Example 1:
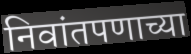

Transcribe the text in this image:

निवांतपणाच्या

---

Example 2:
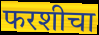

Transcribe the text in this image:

फरशीचा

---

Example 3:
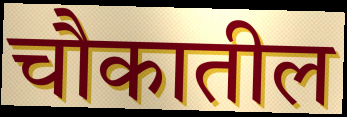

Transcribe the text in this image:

चौकातील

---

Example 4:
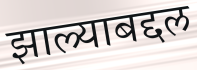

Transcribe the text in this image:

झाल्याबद्दल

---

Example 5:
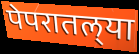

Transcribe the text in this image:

पेपरातल्या